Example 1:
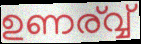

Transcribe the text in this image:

ഉണര്വ്വ്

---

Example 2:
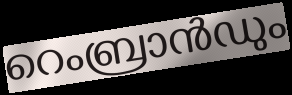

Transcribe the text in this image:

റെംബ്രാൻഡും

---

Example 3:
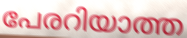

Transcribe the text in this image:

പേരറിയാത്ത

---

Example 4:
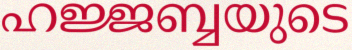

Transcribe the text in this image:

ഹജ്ജബ്ബയുടെ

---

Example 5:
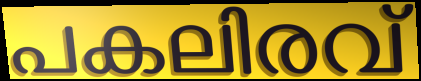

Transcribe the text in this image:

പകലിരവ്